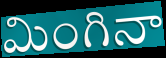
మింగినా